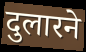
दुलारने